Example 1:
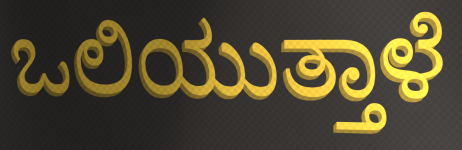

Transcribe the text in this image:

ಒಲಿಯುತ್ತಾಳೆ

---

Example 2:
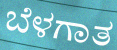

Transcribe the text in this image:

ಬೆಳಗಾತ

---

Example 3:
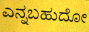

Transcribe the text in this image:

ಎನ್ನಬಹುದೋ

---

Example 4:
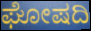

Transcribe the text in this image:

ಘೋಷದಿ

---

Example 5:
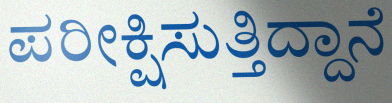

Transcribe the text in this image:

ಪರೀಕ್ಷಿಸುತ್ತಿದ್ದಾನೆ